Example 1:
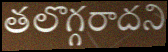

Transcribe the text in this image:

తలొగ్గరాదని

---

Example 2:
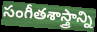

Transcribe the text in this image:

సంగీతశాస్త్రాన్ని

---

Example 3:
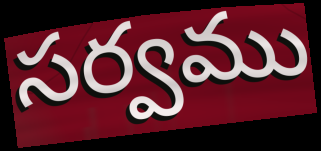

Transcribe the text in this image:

సర్వము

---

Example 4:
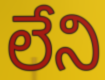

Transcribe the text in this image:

లేని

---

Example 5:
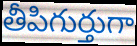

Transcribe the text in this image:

తీపిగుర్తుగా